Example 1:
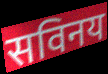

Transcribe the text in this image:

सविनय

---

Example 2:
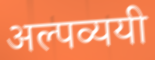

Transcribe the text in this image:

अल्पव्ययी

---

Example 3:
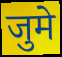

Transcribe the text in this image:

जुमे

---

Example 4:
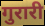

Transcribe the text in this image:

गुरारी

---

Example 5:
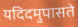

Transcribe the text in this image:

यदिदमुपासते